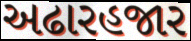
અઢારહજાર